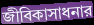
জীবিকাসাধনার